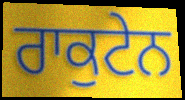
ਰਾਕੁਟੇਨ